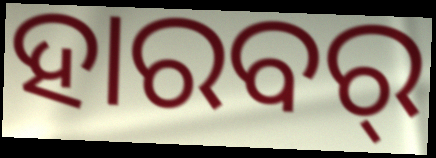
ହାରବର୍